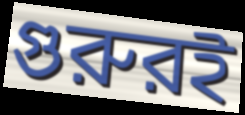
গুরুরই